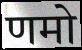
णमो